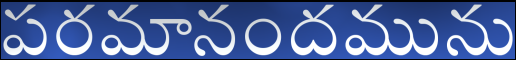
పరమానందమును